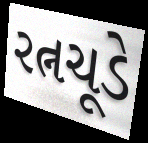
રત્નચૂડે